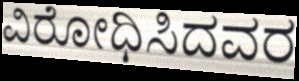
ವಿರೋಧಿಸಿದವರ